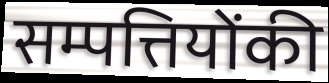
सम्पत्तियोंकी